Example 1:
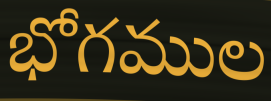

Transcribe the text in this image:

భోగముల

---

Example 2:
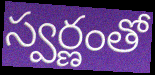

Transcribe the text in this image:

స్వర్ణంతో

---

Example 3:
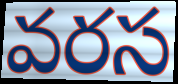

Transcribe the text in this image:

వరస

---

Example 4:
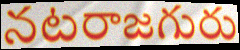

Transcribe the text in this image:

నటరాజగురు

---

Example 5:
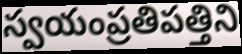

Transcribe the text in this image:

స్వయంప్రతిపత్తిని